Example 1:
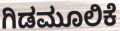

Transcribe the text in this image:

ಗಿಡಮೂಲಿಕೆ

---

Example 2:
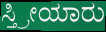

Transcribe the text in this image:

ಸ್ತ್ರೀಯಾರು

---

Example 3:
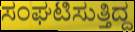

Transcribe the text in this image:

ಸಂಘಟಿಸುತ್ತಿದ್ದ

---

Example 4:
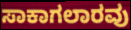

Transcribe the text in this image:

ಸಾಕಾಗಲಾರವು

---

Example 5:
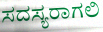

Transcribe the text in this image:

ಸದಸ್ಯರಾಗಲಿ